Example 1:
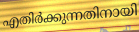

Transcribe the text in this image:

എതിർക്കുന്നതിനായി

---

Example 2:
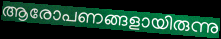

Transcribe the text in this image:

ആരോപണങ്ങളായിരുന്നു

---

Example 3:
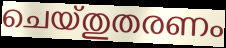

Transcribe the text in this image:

ചെയ്തുതരണം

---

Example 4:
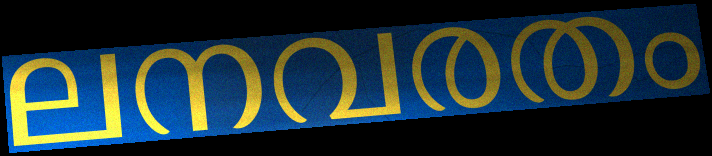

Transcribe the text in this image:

ലനവരതം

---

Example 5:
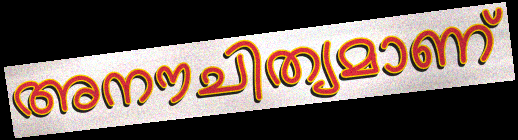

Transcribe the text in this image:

അനൗചിത്യമാണ്